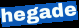
hegade